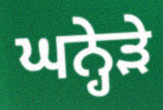
ਘਨ੍ਹੇੜੇ